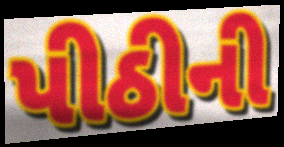
પીઠીની